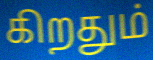
கிறதும்